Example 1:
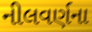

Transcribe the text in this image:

નીલવર્ણના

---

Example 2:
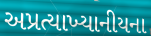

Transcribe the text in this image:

અપ્રત્યાખ્યાનીયના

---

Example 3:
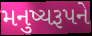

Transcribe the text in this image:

મનુષ્યરૂપને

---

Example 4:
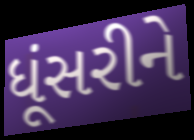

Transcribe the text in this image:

ધૂંસરીને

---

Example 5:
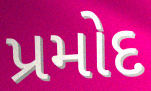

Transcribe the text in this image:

પ્રમોદ